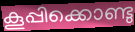
കൂപ്പിക്കൊണ്ടു